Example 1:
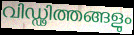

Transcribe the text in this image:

വിഡ്ഢിത്തങ്ങളും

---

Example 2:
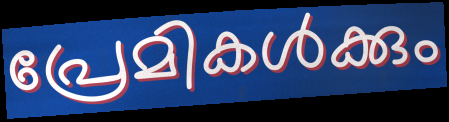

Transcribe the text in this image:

പ്രേമികൾക്കും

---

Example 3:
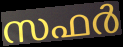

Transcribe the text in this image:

സഫർ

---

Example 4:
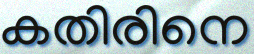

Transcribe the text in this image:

കതിരിനെ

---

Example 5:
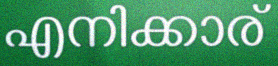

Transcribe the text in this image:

എനിക്കാര്